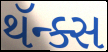
થૅન્ક્સ